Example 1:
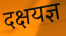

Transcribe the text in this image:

दक्षयज्ञ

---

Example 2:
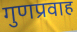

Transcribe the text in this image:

गुणप्रवाह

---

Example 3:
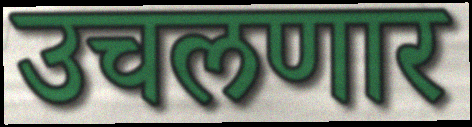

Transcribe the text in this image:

उचलणार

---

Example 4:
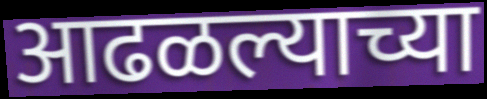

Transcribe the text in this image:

आढळल्याच्या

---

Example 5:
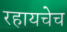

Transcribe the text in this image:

रहायचेच